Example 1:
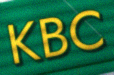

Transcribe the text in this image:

KBC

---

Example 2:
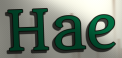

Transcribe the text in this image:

Hae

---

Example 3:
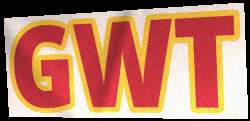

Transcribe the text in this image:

GWT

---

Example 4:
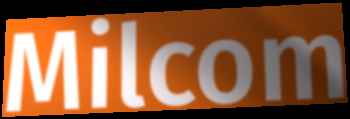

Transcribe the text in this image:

Milcom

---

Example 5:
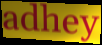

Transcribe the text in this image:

adhey